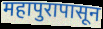
महापुरापासून